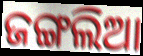
ଜଙ୍ଗଲିଆ